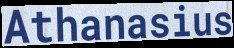
Athanasius